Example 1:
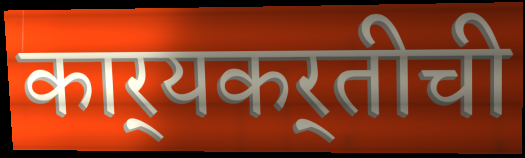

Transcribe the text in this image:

कार्यकर्तीची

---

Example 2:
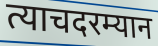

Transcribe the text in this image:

त्याचदरम्यान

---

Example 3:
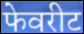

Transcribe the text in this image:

फेवरीट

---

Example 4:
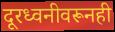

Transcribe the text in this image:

दूरध्वनीवरूनही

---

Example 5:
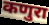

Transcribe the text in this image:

कणुरा